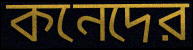
কনেদের